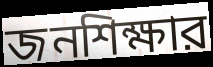
জনশিক্ষার